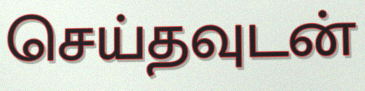
செய்தவுடன்